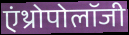
एंथ्रोपोलॉजी